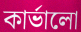
কার্ভালো